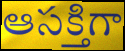
ఆసక్తిగా